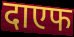
दाएफ